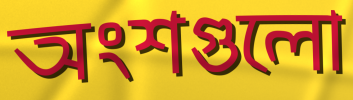
অংশগুলো